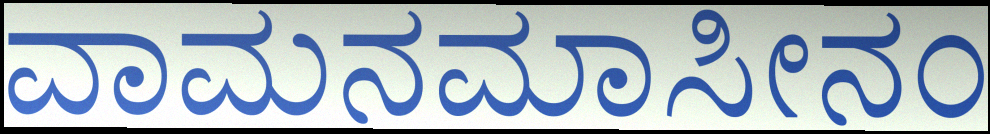
ವಾಮನಮಾಸೀನಂ